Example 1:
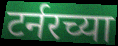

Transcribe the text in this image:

टर्नरच्या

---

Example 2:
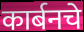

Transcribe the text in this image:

कार्बनचे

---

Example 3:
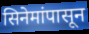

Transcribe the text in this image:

सिनेमांपासून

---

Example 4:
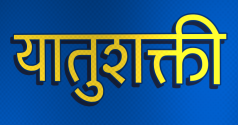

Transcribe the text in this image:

यातुशक्ती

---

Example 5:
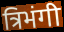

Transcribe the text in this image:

त्रिभंगी